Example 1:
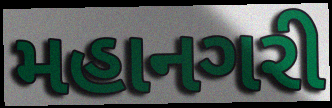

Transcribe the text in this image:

મહાનગરી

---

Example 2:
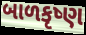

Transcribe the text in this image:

બાળકૃષ્ણ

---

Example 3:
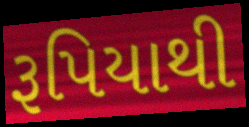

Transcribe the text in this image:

રૂપિયાથી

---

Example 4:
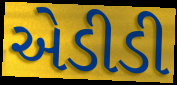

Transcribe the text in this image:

એડીડી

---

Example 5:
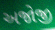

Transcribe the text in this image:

અજોજી